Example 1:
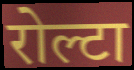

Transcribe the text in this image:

रोल्टा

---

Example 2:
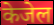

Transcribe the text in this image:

केजेल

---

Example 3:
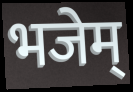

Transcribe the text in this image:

भजेम्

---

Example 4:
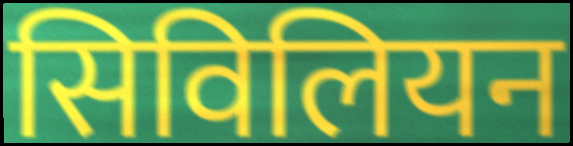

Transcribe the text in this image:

सिविलियन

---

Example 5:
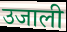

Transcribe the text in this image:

उजाली